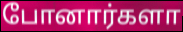
போனார்களா